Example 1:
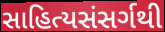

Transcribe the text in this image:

સાહિત્યસંસર્ગથી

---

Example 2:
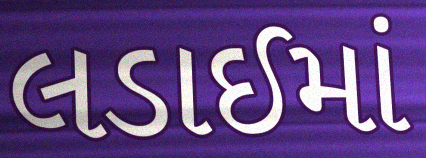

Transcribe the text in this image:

લડાઈમાં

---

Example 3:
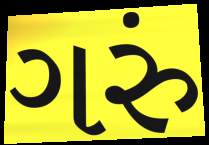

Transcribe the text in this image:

ગરું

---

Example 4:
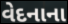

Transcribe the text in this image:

વેદનાના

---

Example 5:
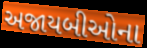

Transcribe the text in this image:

અજાયબીઓના